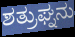
ಶತ್ರುಘ್ನನು